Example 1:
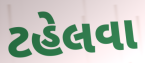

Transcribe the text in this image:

ટહેલવા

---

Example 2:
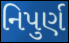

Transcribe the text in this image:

નિપુર્ણ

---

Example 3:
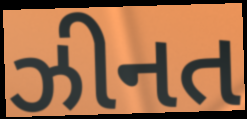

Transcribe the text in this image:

ઝીનત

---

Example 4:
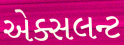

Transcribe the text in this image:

એક્સલન્ટ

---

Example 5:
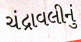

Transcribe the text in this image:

ચંદ્રાવલીનું